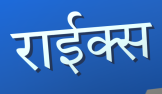
राईक्स